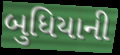
બુધિયાની